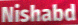
Nishabd